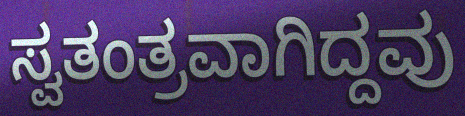
ಸ್ವತಂತ್ರವಾಗಿದ್ದವು